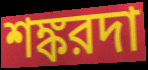
শঙ্করদা